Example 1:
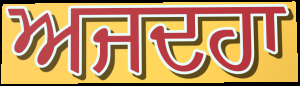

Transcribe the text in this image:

ਅਜਦਹਾ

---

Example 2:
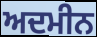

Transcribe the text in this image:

ਅਦਮੀਨ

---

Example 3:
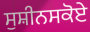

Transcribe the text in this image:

ਸੁਸ਼ੀਨਸਕੋਏ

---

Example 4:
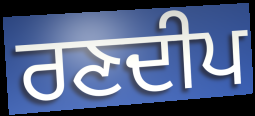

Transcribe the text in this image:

ਰਣਦੀਪ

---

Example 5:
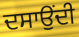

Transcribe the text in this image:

ਦਸਾਉਂਦੀ